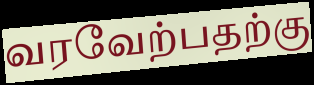
வரவேற்பதற்கு